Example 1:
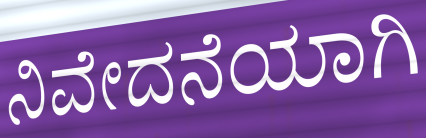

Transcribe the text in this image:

ನಿವೇದನೆಯಾಗಿ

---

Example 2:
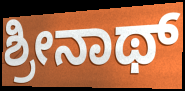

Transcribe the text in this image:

ಶ್ರೀನಾಥ್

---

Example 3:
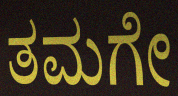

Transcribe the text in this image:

ತಮಗೇ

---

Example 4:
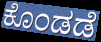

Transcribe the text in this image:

ಕೊಂಡಡೆ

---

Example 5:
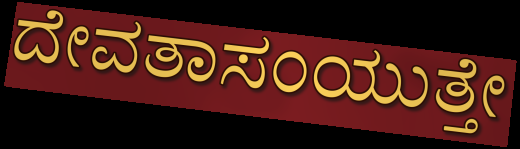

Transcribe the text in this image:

ದೇವತಾಸಂಯುತ್ತೇ